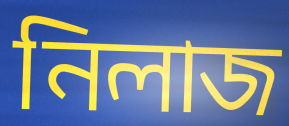
নিলাজ